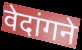
वेदांगने